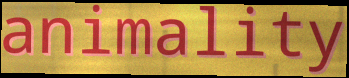
animality